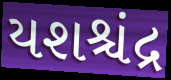
યશશ્ચંદ્ર